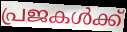
പ്രജകൾക്ക്